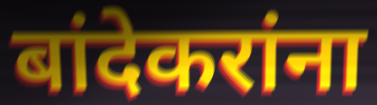
बांदेकरांना